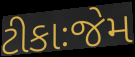
ટીકાઃજેમ